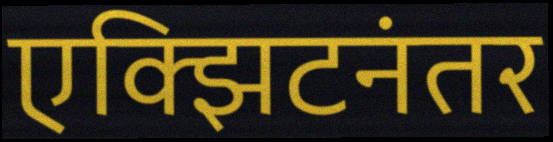
एक्झिटनंतर